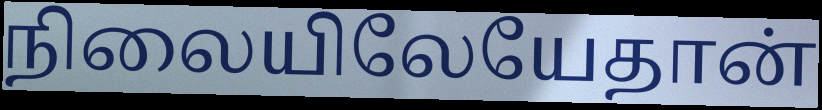
நிலையிலேயேதான்